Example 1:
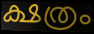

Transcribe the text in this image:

ക്ഷത്രം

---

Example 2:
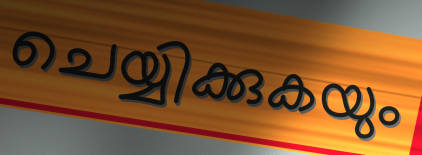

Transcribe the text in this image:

ചെയ്യിക്കുകയും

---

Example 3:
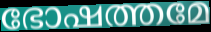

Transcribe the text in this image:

ഭോഷത്തമേ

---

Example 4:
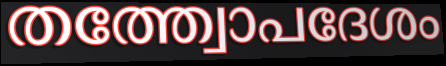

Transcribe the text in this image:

തത്ത്വോപദേശം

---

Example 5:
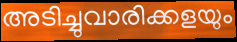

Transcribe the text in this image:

അടിച്ചുവാരിക്കളയും